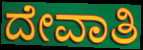
ದೇವಾತಿ